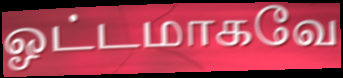
ஓட்டமாகவே